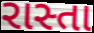
રાસ્તા